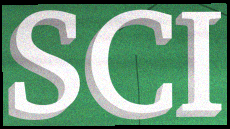
SCI